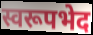
स्वरूपभेद